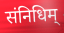
संनिधिम्